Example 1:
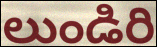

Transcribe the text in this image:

లుండిరి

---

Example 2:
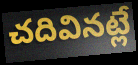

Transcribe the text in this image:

చదివినట్లే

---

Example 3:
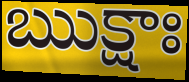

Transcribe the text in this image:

ఋక్షాః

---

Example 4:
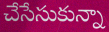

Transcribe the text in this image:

చేసేసుకున్నా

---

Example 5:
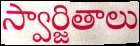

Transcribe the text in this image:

స్వార్జితాలు